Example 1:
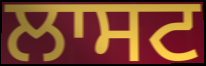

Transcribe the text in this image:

ਲਾਸਟ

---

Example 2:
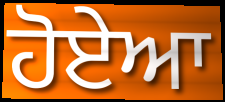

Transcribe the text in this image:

ਹੋਏਆ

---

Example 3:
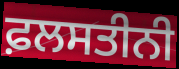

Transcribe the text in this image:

ਫ਼ਲਸਤੀਨੀ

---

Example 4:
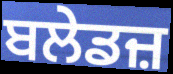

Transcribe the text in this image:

ਬਲੇਡਜ਼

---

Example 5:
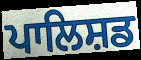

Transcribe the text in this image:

ਪਾਲਿਸ਼ਡ